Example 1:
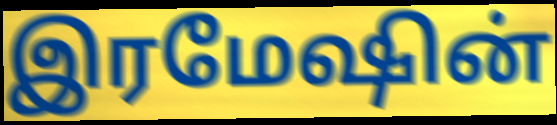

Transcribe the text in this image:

இரமேஷின்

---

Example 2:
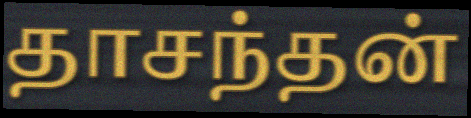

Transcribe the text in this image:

தாசந்தன்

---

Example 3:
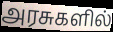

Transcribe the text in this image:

அரசுகளில்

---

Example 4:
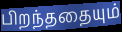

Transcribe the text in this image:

பிறந்ததையும்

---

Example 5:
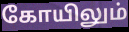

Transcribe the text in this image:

கோயிலும்